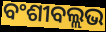
ବଂଶୀବଲ୍ଲଭ